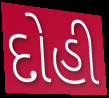
દોહી